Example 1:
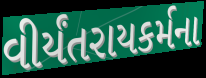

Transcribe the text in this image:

વીર્યંતરાયકર્મના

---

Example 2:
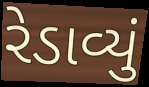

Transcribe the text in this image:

રેડાવ્યું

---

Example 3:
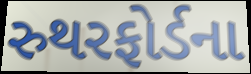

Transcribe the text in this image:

રુથરફોર્ડના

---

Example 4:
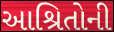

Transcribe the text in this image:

આશ્રિતોની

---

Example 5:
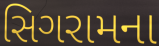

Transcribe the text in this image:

સિગરામના